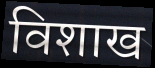
विशाख